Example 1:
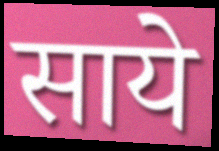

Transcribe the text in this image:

साये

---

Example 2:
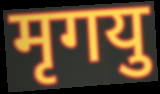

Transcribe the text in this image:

मृगयु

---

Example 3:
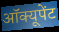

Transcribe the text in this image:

ऑक्यूपेंट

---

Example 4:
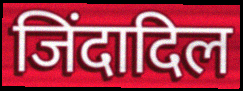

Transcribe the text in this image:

जिंदादिल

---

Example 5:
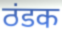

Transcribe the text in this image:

ठंडक